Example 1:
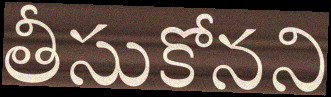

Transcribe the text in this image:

తీసుకోనని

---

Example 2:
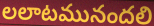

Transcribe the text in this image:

లలాటమునందలి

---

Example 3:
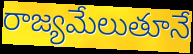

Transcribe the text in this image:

రాజ్యమేలుతూనే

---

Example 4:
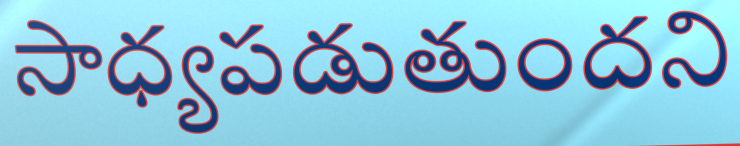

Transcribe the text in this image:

సాధ్యపడుతుందని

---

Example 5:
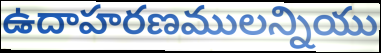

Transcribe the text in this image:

ఉదాహరణములన్నియు